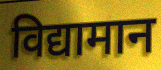
विद्यामान